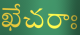
ఖేచరాః